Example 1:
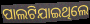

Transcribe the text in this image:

ପାଲଟିଯାଇଥିଲେ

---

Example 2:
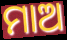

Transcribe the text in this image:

ମାଅ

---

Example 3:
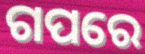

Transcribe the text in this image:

ଗପରେ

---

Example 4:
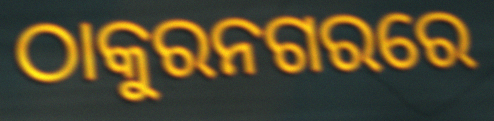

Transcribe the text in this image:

ଠାକୁରନଗରରେ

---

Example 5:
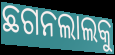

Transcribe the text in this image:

ଛଗନଲାଲକୁ